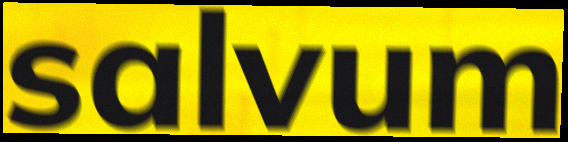
salvum